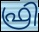
ഫ്രി